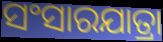
ସଂସାରଯାତ୍ରା